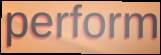
perform